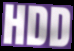
HDD